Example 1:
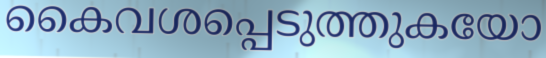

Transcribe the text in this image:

കൈവശപ്പെടുത്തുകയോ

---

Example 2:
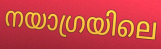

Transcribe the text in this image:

നയാഗ്രയിലെ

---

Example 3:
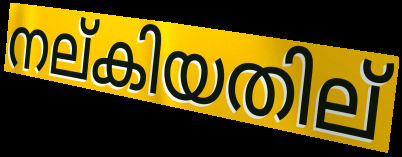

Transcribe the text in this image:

നല്കിയതില്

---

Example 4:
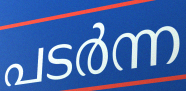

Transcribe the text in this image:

പടർന്ന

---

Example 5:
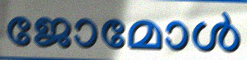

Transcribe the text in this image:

ജോമോൾ